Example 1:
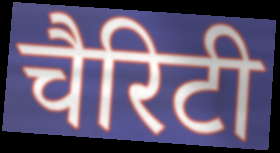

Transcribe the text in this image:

चैरिटी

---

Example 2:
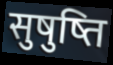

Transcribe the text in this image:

सुषुष्ति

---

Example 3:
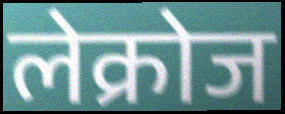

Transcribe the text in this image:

लेक्रोज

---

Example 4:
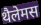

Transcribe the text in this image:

थैलेमस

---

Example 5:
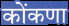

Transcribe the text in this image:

कोंकणा